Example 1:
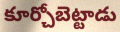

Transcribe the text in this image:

కూర్చోబెట్టాడు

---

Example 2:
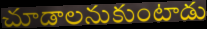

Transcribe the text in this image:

చూడాలనుకుంటాడు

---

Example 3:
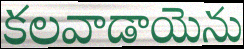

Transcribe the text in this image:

కలవాడాయెను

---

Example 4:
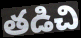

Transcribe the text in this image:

తడిచి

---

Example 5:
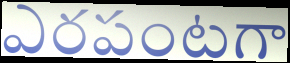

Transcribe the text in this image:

ఎరపంటగా